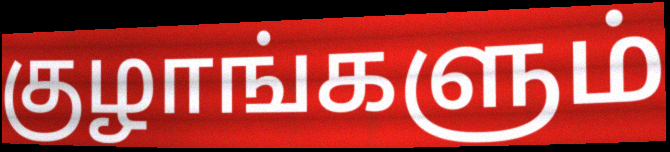
குழாங்களும்